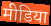
मीडिया